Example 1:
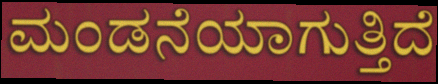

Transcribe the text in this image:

ಮಂಡನೆಯಾಗುತ್ತಿದೆ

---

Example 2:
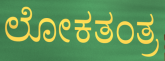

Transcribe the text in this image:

ಲೋಕತಂತ್ರ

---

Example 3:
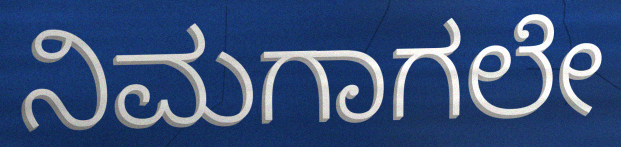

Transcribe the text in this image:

ನಿಮಗಾಗಲೇ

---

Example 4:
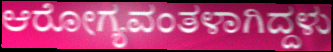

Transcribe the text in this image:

ಆರೋಗ್ಯವಂತಳಾಗಿದ್ದಳು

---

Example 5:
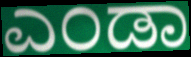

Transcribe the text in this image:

ಎಂಡಾ